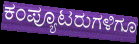
ಕಂಪ್ಯೂಟರುಗಳಿಗೂ